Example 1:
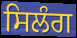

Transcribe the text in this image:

ਸਿਲੰਗ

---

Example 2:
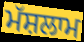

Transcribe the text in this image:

ਮੱਸ਼ਲਾਮ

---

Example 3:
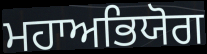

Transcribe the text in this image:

ਮਹਾਅਭਿਯੋਗ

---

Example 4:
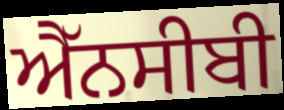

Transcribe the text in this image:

ਐੱਨਸੀਬੀ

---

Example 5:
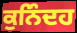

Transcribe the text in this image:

ਕੁਨਿੰਦਹ